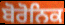
ਬੋਰੋਨਿਕ